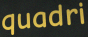
quadri